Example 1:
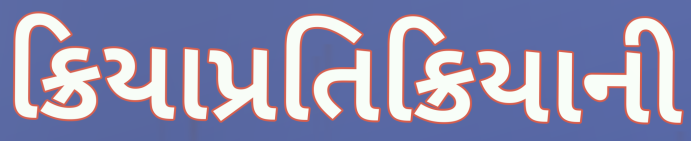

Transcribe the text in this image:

ક્રિયાપ્રતિક્રિયાની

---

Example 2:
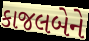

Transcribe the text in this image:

કાજલબેને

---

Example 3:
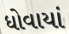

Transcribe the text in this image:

ધોવાયાં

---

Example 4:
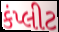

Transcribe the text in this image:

કંપ્લીટ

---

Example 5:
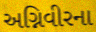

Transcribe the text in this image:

અગ્નિવીરના